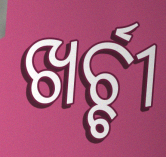
ଖର୍ଚ୍ଚୀ